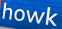
howk